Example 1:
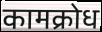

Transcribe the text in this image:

कामक्रोध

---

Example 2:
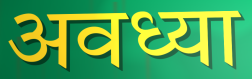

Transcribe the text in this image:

अवध्या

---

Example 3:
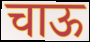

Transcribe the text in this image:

चाऊ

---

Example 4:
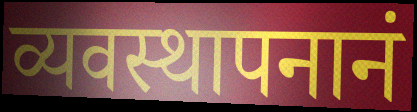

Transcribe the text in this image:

व्यवस्थापनानं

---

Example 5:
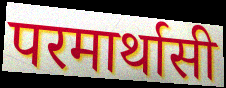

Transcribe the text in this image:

परमार्थासी